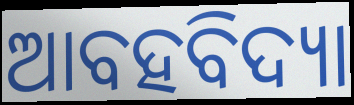
ଆବହବିଦ୍ୟା